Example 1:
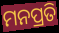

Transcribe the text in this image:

ମନପ୍ରତି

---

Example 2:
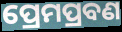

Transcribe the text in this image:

ପ୍ରେମପ୍ରବଣ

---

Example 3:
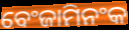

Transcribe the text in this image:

ବେଂଜାମିନଂକ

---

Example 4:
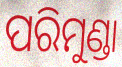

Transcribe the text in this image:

ପରିମୁଣ୍ଡା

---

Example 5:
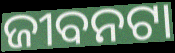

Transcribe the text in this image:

ଜୀବନଟା